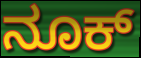
ನೂಕ್